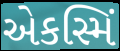
એકસ્મિં